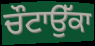
ਚੌਟਾਉੱਕਾ